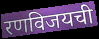
रणविजयची